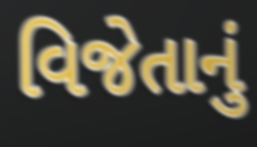
વિજેતાનું